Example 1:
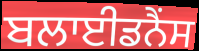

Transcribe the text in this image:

ਬਲਾਈਡਨੈਂਸ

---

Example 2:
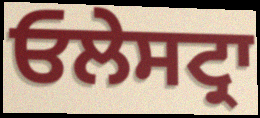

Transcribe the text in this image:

ਓਲੇਸਟ੍ਰਾ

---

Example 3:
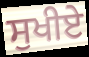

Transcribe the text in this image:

ਸੁਖੀਏ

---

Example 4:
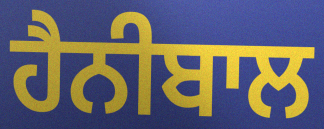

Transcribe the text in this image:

ਹੈਨੀਬਾਲ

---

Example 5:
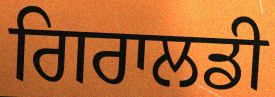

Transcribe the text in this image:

ਗਿਰਾਲਡੀ